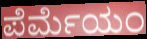
ಪೆರ್ಮೆಯಂ